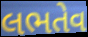
લભતેવ